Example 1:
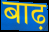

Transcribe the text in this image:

बाढ़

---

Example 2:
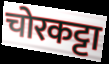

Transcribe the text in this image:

चोरकट्टा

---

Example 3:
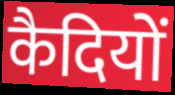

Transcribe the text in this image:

कैदियों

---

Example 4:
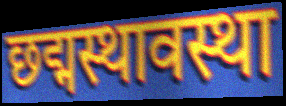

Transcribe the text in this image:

छद्मस्थावस्था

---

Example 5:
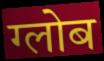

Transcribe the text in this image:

ग्लोब